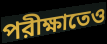
পরীক্ষাতেও